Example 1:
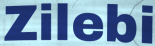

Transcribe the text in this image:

Zilebi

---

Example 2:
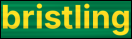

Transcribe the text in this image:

bristling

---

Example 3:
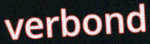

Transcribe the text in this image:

verbond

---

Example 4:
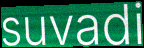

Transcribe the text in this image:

suvadi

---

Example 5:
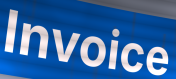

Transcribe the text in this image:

Invoice